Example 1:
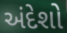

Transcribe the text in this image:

અંદેશો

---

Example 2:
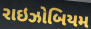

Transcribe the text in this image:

રાઇઝોબિયમ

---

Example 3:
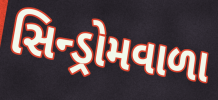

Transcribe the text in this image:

સિન્ડ્રોમવાળા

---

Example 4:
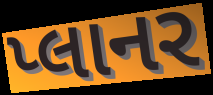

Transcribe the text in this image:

પ્લાનર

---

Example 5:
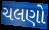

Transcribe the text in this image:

ચલણો